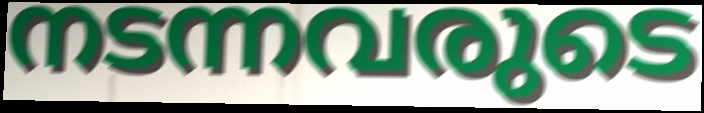
നടന്നവരുടെ